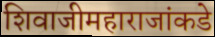
शिवाजीमहाराजांकडे